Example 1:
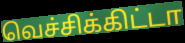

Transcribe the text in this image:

வெச்சிக்கிட்டா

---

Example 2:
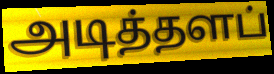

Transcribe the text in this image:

அடித்தளப்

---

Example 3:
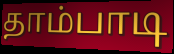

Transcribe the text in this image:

தாம்பாடி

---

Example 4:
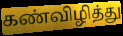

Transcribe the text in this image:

கண்விழித்து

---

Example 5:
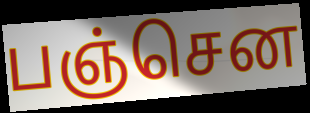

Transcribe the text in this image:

பஞ்சென